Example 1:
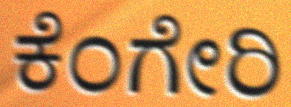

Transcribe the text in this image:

ಕೆಂಗೇರಿ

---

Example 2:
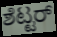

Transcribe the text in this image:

ಶೆಟ್ಟರ್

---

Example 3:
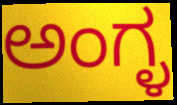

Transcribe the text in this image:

ಅಂಗ್ಳ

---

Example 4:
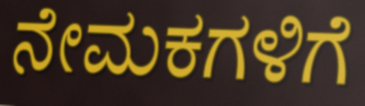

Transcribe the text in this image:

ನೇಮಕಗಳಿಗೆ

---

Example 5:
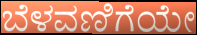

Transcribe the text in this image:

ಬೆಳವಣಿಗೆಯೇ